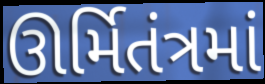
ઊર્મિતંત્રમાં